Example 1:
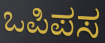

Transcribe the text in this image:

ಒಪಿಪಸ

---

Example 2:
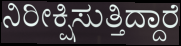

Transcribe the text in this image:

ನಿರೀಕ್ಷಿಸುತ್ತಿದ್ದಾರೆ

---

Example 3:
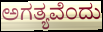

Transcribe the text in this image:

ಅಗತ್ಯವೆಂದು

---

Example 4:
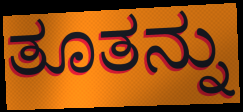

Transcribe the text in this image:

ತೂತನ್ನು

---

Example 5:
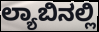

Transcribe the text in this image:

ಲ್ಯಾಬಿನಲ್ಲಿ